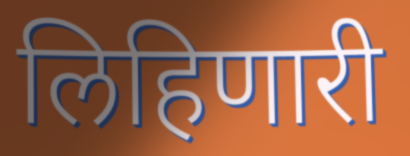
लिहिणारी